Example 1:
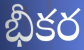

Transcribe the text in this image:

భీకర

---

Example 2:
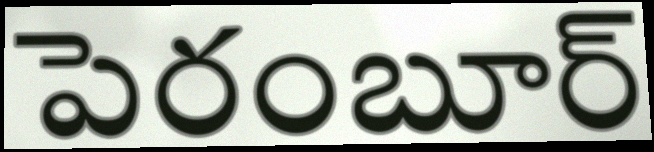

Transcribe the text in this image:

పెరంబూర్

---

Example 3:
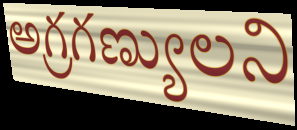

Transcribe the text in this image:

అగ్రగణ్యులని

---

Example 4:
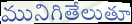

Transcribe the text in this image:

మునిగితేలుతూ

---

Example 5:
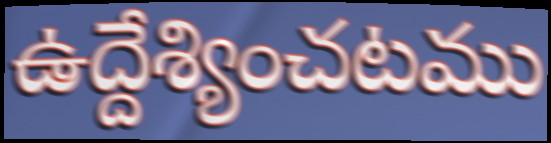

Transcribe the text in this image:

ఉద్దేశ్యించటము